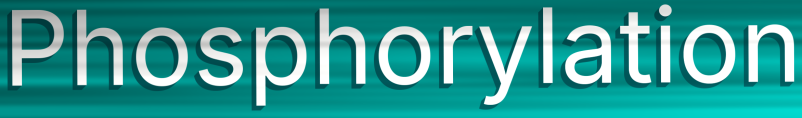
Phosphorylation